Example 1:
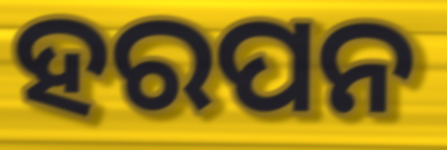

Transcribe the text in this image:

ହରପନ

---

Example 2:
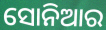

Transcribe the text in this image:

ସୋନିଆର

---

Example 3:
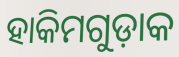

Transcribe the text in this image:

ହାକିମଗୁଡ଼ାକ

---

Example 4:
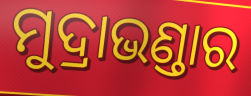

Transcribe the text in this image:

ମୁଦ୍ରାଭଣ୍ଡାର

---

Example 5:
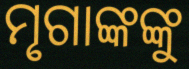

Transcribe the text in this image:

ମୃଗାଙ୍କଙ୍କୁ